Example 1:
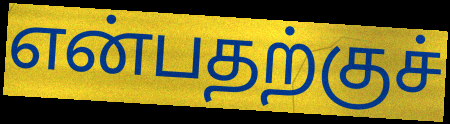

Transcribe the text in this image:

என்பதற்குச்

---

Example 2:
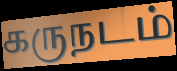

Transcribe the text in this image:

கருநடம்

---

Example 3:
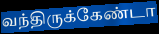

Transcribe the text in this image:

வந்திருக்கேண்டா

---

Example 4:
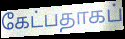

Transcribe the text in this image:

கேட்பதாகப்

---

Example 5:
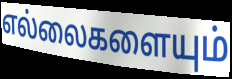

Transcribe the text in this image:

எல்லைகளையும்